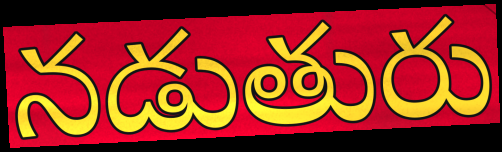
నడుతురు